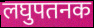
लघुपतनक